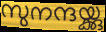
സുനന്ദയ്ക്കു